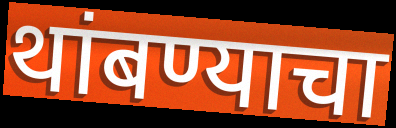
थांबण्याचा